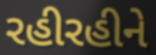
રહીરહીને